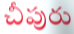
చీపురు